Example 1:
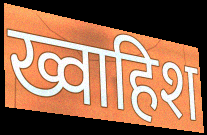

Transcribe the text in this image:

ख्वाहिश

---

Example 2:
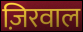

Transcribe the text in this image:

ज़िरवाल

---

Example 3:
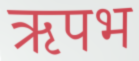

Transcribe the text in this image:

ऋपभ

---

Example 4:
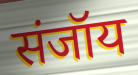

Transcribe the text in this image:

संजॉय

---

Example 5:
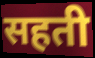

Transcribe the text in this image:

सहती